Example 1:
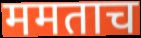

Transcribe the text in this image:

ममताच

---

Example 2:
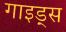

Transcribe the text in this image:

गाइड्स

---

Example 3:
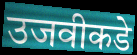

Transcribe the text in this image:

उजवीकडे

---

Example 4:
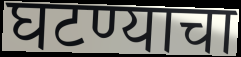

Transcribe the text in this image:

घटण्याचा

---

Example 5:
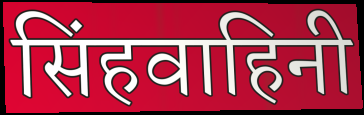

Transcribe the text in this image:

सिंहवाहिनी